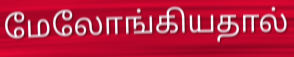
மேலோங்கியதால்